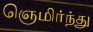
ஞெமிர்ந்து